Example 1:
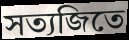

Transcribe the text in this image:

সত্যজিতে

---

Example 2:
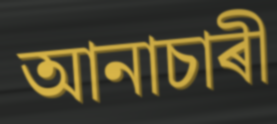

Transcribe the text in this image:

আনাচাৰী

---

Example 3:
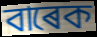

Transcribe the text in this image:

বাৰেক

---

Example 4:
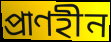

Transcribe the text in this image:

প্ৰাণহীন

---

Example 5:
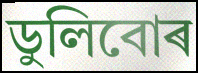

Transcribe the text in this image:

ডুলিবোৰ